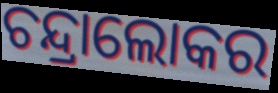
ଚନ୍ଦ୍ରାଲୋକର